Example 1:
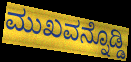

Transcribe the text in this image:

ಮುಖವನ್ನೊಡ್ಡಿ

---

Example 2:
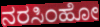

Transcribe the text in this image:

ನರಸಿಂಹೋ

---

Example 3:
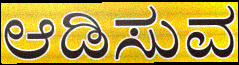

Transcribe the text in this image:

ಆಡಿಸುವ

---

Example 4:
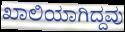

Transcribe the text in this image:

ಖಾಲಿಯಾಗಿದ್ದವು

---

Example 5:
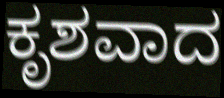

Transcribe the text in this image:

ಕೃಶವಾದ